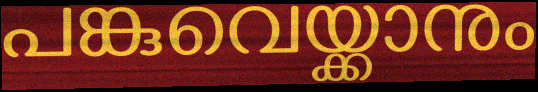
പങ്കുവെയ്ക്കാനും